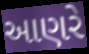
આણરે